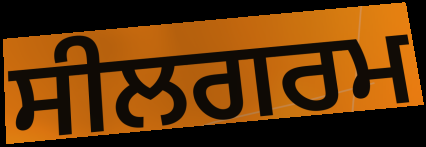
ਸੀਲਗਰਮ